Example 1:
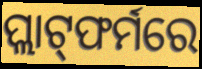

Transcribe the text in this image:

ପ୍ଲାଟ୍‌ଫର୍ମରେ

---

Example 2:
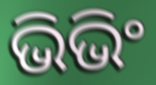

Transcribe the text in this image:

ଭିଭିଂ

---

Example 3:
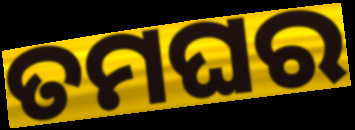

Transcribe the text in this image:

ତମଘର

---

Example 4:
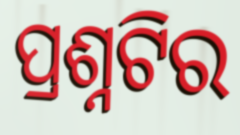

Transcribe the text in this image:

ପ୍ରଶ୍ନଟିର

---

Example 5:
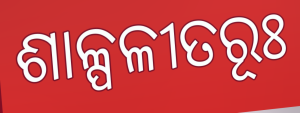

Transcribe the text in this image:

ଶାଳ୍ପଳୀତରୂଃ